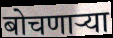
बोचणाऱ्या